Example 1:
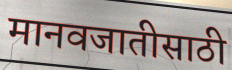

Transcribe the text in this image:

मानवजातीसाठी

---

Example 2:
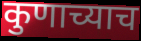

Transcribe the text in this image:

कुणाच्याच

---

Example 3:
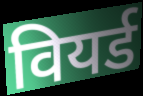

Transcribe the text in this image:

वियर्ड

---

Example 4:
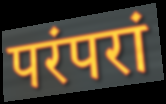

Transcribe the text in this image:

परंपरां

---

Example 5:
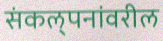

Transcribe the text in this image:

संकल्पनांवरील